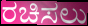
ರಚಿಸಲು